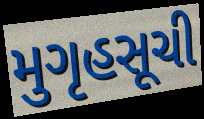
મુગૃહસૂચી